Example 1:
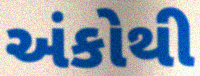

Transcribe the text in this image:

અંકોથી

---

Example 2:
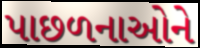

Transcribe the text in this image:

પાછળનાઓને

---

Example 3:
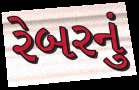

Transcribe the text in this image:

રેબરનું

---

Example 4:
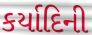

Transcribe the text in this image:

કર્યાદિની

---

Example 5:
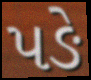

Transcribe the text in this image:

પઙે